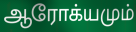
ஆரோக்யமும்